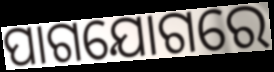
ପାଗଯୋଗରେ